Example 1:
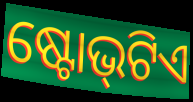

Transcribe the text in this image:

ଷ୍ଟୋଭ୍‌ଟିଏ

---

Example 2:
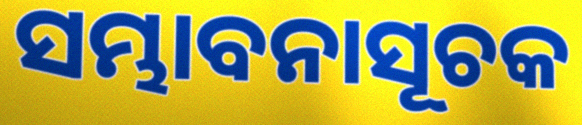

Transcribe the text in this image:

ସମ୍ଭାବନାସୂଚକ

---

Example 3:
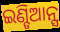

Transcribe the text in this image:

ଇଣ୍ଡିଆନ୍ସ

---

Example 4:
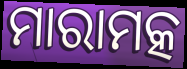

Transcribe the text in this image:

ମାରାମତ୍କ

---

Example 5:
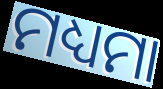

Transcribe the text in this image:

ମଧ୍ୟମା